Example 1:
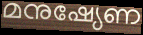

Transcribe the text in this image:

മനുഷ്യേണ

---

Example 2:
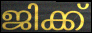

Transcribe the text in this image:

ജിക്ക്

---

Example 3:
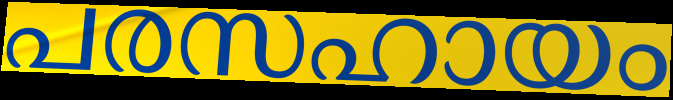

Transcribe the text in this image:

പരസഹായം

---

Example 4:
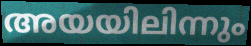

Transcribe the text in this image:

അയയിലിന്നും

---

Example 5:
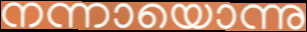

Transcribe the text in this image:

നന്നായൊന്നു